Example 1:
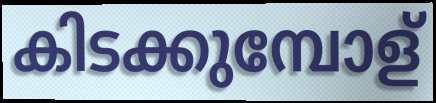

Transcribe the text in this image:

കിടക്കുമ്പോള്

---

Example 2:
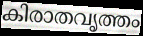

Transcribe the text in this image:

കിരാതവൃത്തം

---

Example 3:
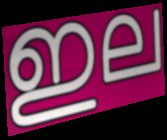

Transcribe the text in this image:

ഇല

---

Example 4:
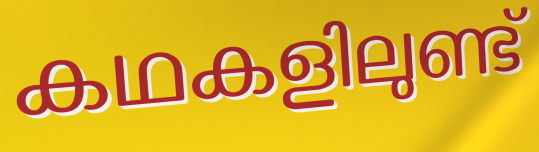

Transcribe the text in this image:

കഥകളിലുണ്ട്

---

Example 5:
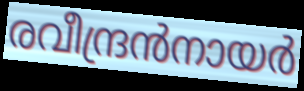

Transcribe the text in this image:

രവീന്ദ്രൻനായർ